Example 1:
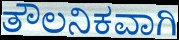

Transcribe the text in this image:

ತೌಲನಿಕವಾಗಿ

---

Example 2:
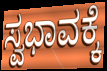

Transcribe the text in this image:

ಸ್ವಭಾವಕ್ಕೆ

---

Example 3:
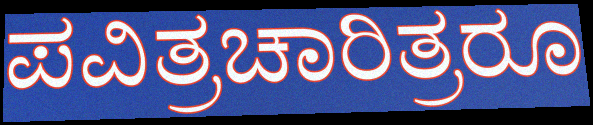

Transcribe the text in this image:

ಪವಿತ್ರಚಾರಿತ್ರರೂ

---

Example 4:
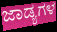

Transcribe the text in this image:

ಜಾಡ್ಯಗಳ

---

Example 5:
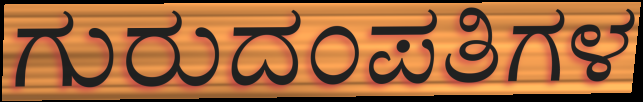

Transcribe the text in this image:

ಗುರುದಂಪತಿಗಳ